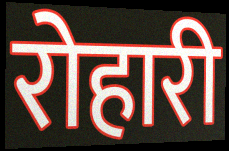
रोहारी